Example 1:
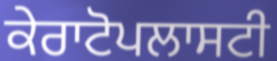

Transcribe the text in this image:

ਕੇਰਾਟੋਪਲਾਸਟੀ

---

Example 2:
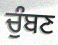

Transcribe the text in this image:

ਚੁੰਬਣ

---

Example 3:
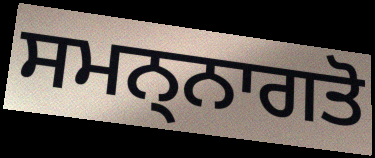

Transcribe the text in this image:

ਸਮਨ੍ਨਾਗਤੋ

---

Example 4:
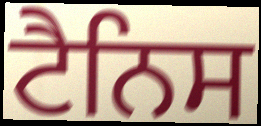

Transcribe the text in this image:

ਟੈਨਿਸ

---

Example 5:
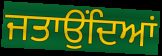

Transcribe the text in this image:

ਜਤਾਉੰਦਿਆਂ